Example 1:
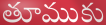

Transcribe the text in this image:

తూముకు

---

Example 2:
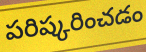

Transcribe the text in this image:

పరిష్కరించడం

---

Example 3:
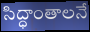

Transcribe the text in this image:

సిద్ధాంతాలనే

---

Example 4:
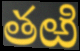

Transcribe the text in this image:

తఱి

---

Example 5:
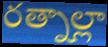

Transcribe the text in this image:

రత్నాల్లా